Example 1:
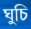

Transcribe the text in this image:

ঘুচি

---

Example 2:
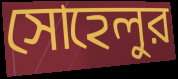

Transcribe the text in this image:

সোহেলুর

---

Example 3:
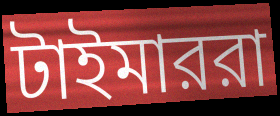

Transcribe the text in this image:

টাইমাররা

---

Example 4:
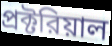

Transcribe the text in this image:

প্রক্টরিয়াল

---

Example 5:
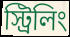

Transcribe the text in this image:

স্ট্রিলিং